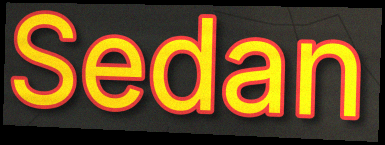
Sedan